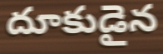
దూకుడైన